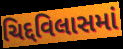
ચિદ્દવિલાસમાં